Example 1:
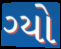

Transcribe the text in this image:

ગ્યો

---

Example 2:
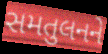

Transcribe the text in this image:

સમતુલનને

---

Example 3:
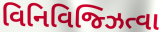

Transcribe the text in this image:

વિનિવિજ્ઝિત્વા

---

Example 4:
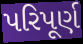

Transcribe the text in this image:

પરિપૂર્ણ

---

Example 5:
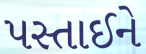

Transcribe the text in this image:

પસ્તાઈને